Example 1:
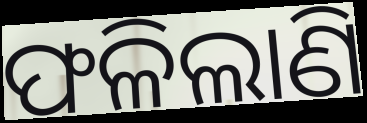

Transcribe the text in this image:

ଫଳିଲାଣି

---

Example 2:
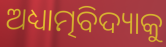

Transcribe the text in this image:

ଅଧ୍ୟାତ୍ମବିଦ୍ୟାକୁ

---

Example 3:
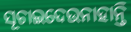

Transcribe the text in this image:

ସୂଚାଇଦେଉନାହାନ୍ତି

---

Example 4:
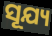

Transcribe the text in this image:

ସୂଯ୍ୟ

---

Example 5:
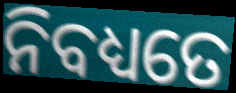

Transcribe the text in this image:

ନିବଧ୍ୟତେ